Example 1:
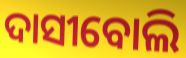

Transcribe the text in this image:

ଦାସୀବୋଲି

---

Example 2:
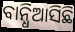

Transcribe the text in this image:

ବାନ୍ଧିଆସିଛି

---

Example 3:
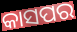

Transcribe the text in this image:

କାସପର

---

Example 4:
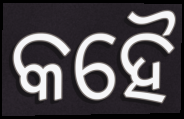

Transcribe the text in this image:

କହୈ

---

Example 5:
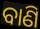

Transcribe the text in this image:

ବାଣି